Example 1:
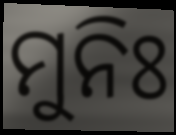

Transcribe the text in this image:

ମୁନିଃ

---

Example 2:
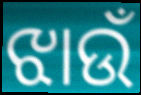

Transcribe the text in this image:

ଝାଉଁ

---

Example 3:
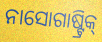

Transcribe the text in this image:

ନାସୋଗାଷ୍ଟ୍ରିକ୍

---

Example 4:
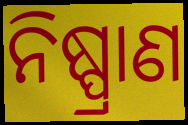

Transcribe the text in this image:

ନିଷ୍ପ୍ରାଣ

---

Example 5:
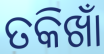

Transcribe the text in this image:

ତକିଖାଁ